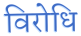
विरोधि